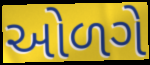
ઓળગે